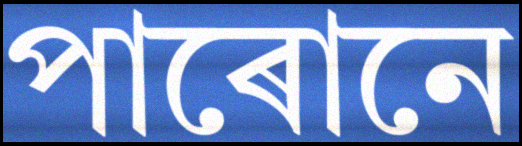
পাৰোনে